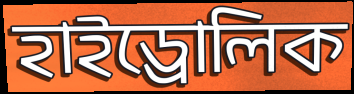
হাইড্রোলিক